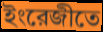
ইংরেজীতে